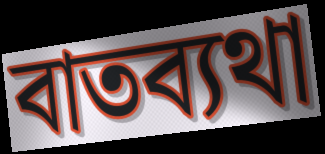
বাতব্যথা